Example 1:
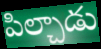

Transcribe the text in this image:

పిల్చాడు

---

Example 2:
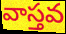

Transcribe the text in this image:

వాస్తవ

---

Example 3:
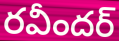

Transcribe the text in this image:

రవీందర్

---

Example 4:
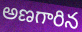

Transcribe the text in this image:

అణగారిన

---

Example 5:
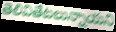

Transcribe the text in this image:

తెలివితేటలున్నాయని